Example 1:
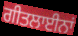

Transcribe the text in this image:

ਗੀਤਲਾਈਨਾਂ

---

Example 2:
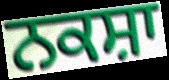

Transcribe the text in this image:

ਨਕਸ਼ਾ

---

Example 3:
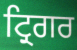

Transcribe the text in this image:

ਟ੍ਰਿਗਰ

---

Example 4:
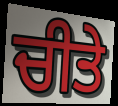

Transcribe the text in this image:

ਚੀਤੇ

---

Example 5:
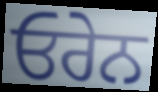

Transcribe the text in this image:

ਓਰੇਨ